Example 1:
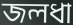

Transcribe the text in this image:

জলধা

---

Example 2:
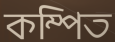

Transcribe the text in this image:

কম্পিত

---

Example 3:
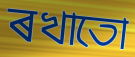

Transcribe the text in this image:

ৰখাতো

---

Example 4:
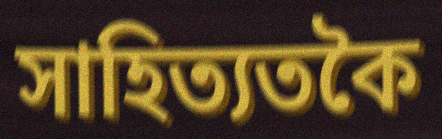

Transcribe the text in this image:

সাহিত্যতকৈ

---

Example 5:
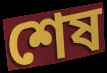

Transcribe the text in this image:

শেষ